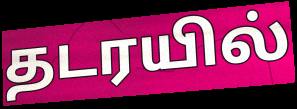
தடரயில்